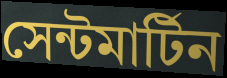
সেন্টমার্টিন